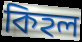
কিহল